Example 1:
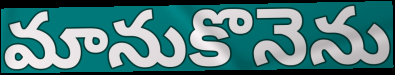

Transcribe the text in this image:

మానుకొనెను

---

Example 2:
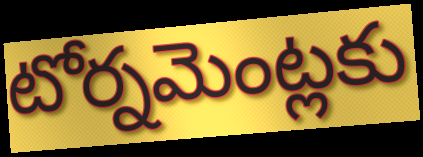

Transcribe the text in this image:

టోర్నమెంట్లకు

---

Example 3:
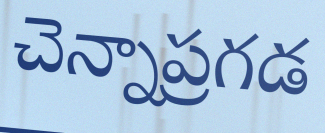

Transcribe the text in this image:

చెన్నాప్రగడ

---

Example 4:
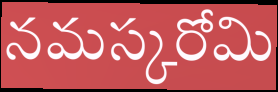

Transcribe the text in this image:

నమస్కరోమి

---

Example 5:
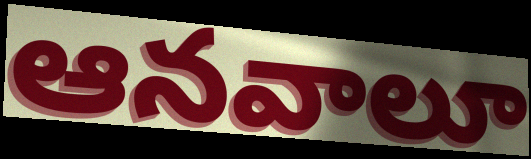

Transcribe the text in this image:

ఆనవాలూ